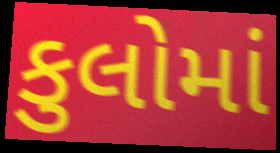
કુલોમાં